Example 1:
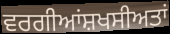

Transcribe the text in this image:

ਵਰਗੀਆਂਸ਼ਖਸੀਅਤਾਂ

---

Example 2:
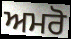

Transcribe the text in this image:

ਅਮਰੋ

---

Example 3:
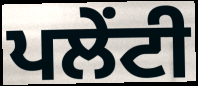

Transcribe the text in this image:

ਪਲੇਂਟੀ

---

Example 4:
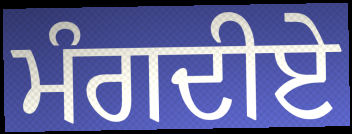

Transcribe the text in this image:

ਮੰਗਦੀਏ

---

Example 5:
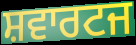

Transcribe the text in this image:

ਸ਼ਵਾਰਟਜ